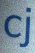
cj